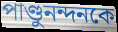
পাণ্ডুনন্দনকে